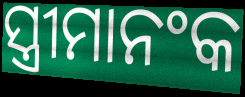
ସ୍ତ୍ରୀମାନଂକ